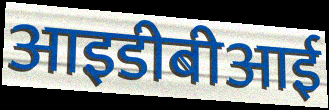
आइडीबीआई